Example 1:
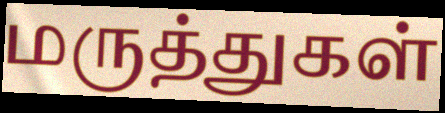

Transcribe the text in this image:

மருத்துகள்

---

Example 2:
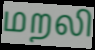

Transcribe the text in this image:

மறலி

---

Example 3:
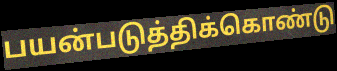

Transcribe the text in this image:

பயன்படுத்திக்கொண்டு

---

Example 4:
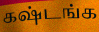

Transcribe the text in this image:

கஷ்டங்க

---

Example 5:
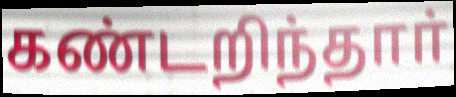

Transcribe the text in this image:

கண்டறிந்தார்